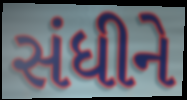
સંધીને